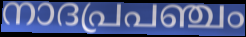
നാദപ്രപഞ്ചം